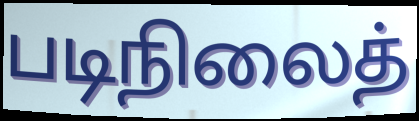
படிநிலைத்